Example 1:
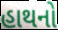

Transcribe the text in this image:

હાથનો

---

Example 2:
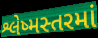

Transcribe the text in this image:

શ્લેષ્મસ્તરમાં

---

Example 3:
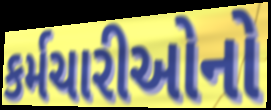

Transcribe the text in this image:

કર્મચારીઓનો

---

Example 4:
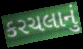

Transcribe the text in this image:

કરચલાનું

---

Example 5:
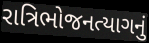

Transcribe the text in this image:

રાત્રિભોજનત્યાગનું